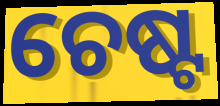
ଚେଷ୍ଟ